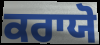
ਕਰਾਯੋ